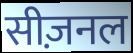
सीज़नल